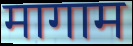
मागाम